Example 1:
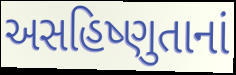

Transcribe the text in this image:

અસહિષ્ણુતાનાં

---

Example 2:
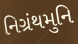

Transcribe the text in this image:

નિગ્રંથમુનિ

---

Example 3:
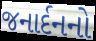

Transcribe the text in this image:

જનાર્દનનો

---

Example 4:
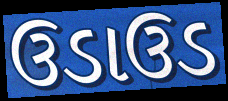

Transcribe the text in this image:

ઉડાઉડ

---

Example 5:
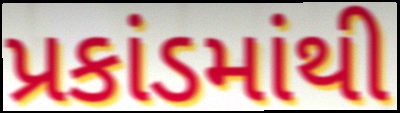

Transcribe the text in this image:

પ્રકાંડમાંથી